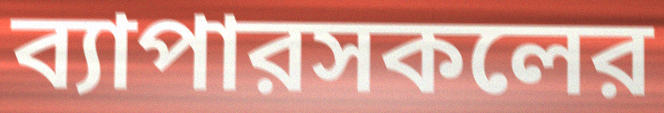
ব্যাপারসকলের